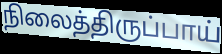
நிலைத்திருப்பாய்